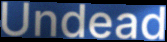
Undead